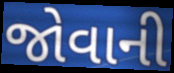
જોવાની